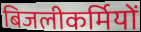
बिजलीकर्मियों